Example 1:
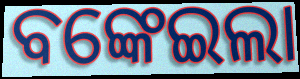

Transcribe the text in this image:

ବଙ୍କେଇଲା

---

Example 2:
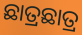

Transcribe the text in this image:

ଛାତ୍ରଛାତ୍ର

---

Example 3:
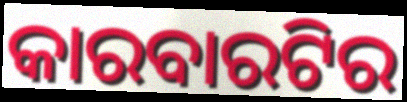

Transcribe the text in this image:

କାରବାରଟିର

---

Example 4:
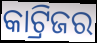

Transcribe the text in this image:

କାଟ୍ରିଜର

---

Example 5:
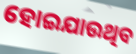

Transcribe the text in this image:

ହୋଇଯାଉଥିବ